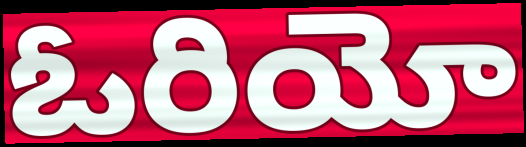
ఓరియో